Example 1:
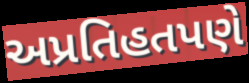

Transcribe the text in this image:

અપ્રતિહતપણે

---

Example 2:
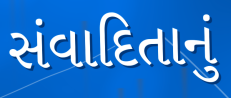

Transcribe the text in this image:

સંવાદિતાનું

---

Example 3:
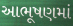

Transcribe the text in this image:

આભૂષણમાં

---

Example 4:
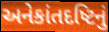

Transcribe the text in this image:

અનેકાંતદષ્ટિનું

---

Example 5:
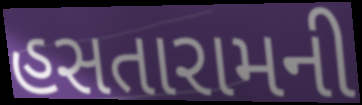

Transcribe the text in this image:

હસતારામની